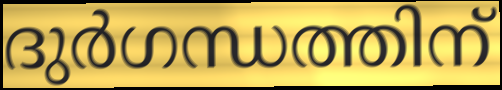
ദുർഗന്ധത്തിന്